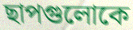
ছাপগুলোকে